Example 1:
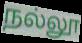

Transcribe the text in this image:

நல்லூ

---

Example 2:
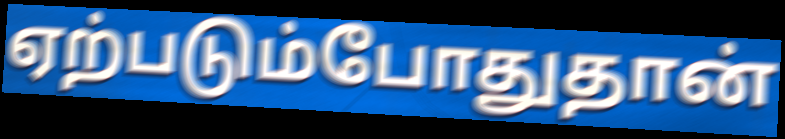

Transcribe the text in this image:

ஏற்படும்போதுதான்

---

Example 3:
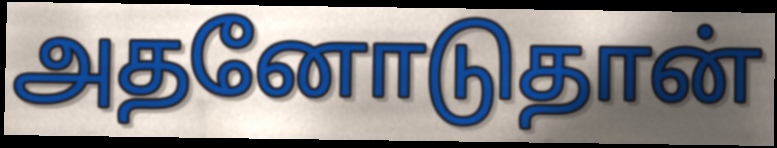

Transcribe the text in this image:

அதனோடுதான்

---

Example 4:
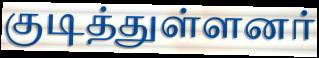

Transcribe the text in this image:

குடித்துள்ளனர்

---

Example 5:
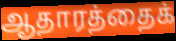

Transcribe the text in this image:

ஆதாரத்தைக்